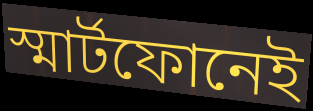
স্মার্টফোনেই